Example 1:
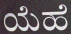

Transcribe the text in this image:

ಯೆಹೆ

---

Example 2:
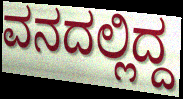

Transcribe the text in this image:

ವನದಲ್ಲಿದ್ದ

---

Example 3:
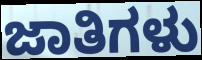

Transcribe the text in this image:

ಜಾತಿಗಳು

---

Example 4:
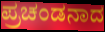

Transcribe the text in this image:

ಪ್ರಚಂಡನಾದ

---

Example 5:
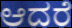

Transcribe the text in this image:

ಆದರೆ